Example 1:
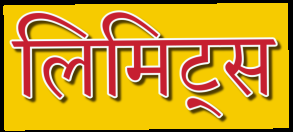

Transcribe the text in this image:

लिमिट्स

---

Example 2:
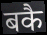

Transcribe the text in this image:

बकै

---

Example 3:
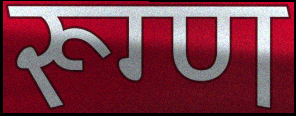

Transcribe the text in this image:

रूग्ण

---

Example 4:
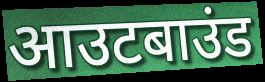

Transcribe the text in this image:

आउटबाउंड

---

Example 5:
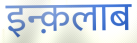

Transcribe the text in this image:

इन्क़लाब